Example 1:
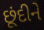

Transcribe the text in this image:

છૂંદીને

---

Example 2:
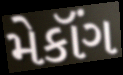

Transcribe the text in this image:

મેકૉંગ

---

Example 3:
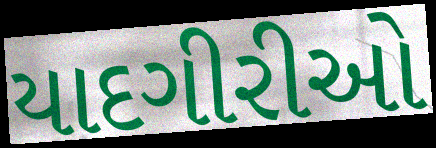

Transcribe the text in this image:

યાદગીરીઓ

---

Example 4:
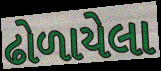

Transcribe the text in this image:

ઢોળાયેલા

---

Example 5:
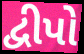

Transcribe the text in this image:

દ્વીપો